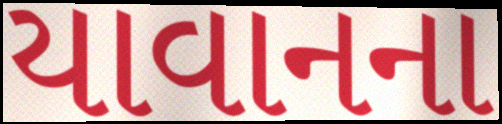
યાવાનના